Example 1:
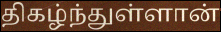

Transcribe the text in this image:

திகழ்ந்துள்ளான்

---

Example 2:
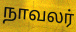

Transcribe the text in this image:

நாவலர்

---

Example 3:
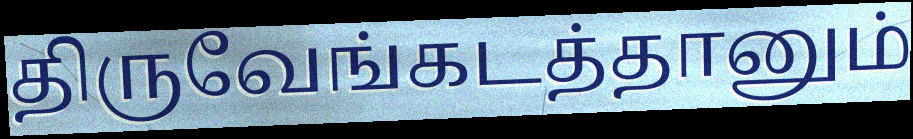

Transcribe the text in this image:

திருவேங்கடத்தானும்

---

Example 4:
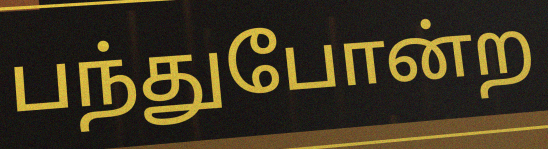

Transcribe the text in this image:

பந்துபோன்ற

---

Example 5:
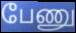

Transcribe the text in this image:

பேணு